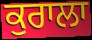
ਕੁਰਾਲਾ